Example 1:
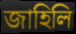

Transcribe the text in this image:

জাহিলি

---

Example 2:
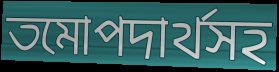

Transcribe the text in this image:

তমোপদার্থসহ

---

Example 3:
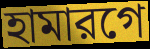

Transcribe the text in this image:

হামারগে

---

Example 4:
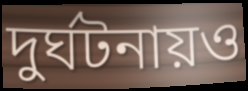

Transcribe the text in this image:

দুর্ঘটনায়ও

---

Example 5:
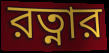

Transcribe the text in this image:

রত্নার